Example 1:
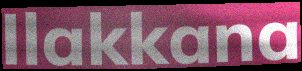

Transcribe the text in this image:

Ilakkana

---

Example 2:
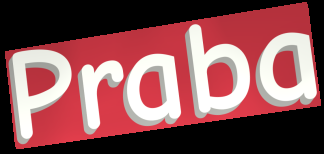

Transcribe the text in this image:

Praba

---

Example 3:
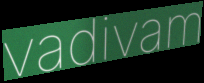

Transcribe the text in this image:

vadivam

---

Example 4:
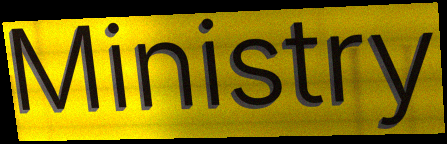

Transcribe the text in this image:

Ministry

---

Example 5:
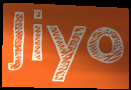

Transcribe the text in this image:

Jiyo